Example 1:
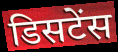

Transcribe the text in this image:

डिसटेंस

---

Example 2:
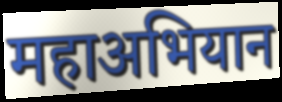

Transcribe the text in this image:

महाअभियान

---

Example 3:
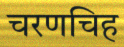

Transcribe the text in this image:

चरणचिह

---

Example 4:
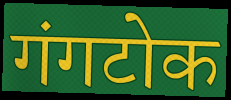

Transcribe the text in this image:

गंगटोक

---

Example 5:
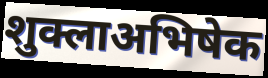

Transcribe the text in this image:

शुक्लाअभिषेक